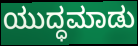
ಯುದ್ಧಮಾಡು